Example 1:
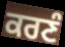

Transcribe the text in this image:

ਕਰਣੰ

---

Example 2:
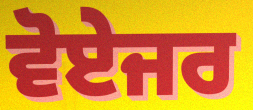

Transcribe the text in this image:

ਵੋਏਜਰ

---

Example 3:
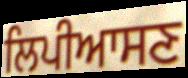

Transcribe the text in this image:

ਲਿਪੀਆਸਣ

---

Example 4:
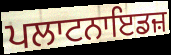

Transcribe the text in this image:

ਪਲਾਟਨਾਇਡਜ਼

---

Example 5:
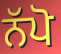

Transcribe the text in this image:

ਨੱਪੋ